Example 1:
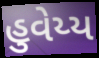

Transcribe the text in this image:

હુવેય્ય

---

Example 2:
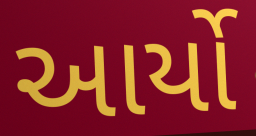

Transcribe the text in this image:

આર્યો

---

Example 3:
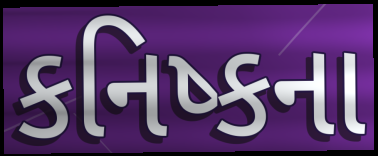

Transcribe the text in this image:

કનિષ્કના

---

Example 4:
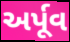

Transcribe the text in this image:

અર્પૂવ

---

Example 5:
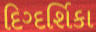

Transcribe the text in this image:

દિગ્દર્શિકા